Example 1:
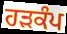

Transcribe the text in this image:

ਹੜਕੰਪ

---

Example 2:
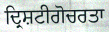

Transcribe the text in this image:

ਦ੍ਰਿਸ਼ਟੀਗੋਚਰਤਾ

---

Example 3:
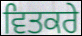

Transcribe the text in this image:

ਵਿਤਕਰੇ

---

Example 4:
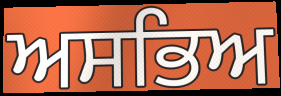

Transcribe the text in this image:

ਅਸਭਿਅ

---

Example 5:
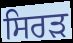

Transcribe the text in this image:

ਸਿਰਡ਼